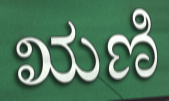
ಋಣಿ